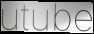
utube